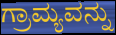
ಗ್ರಾಮ್ಯವನ್ನು